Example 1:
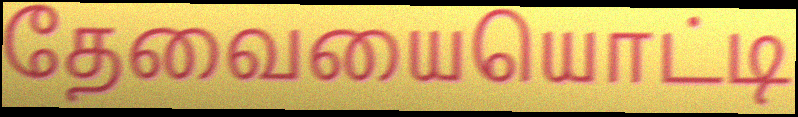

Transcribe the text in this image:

தேவையையொட்டி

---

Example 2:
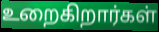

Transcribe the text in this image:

உறைகிறார்கள்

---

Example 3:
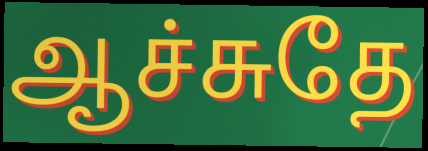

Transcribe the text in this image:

ஆச்சுதே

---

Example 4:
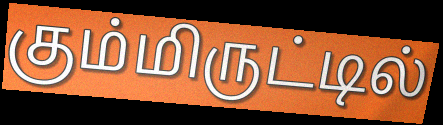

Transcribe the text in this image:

கும்மிருட்டில்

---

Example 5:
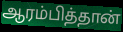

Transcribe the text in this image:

ஆரம்பித்தான்